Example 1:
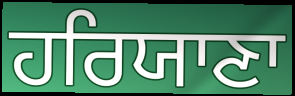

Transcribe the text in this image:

ਹਰਿਯਾਣਾ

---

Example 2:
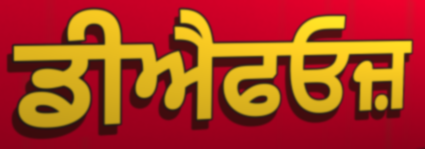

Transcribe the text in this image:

ਡੀਐਫਓਜ਼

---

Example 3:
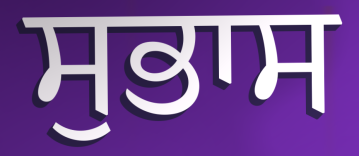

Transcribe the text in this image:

ਸੁਭਾਸ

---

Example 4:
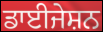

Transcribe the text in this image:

ਡਾਈਜੇਸ਼ਨ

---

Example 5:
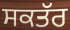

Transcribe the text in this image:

ਸਕਤੱਰ